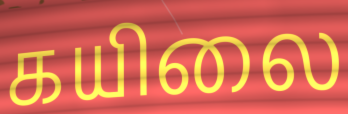
கயிலை